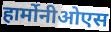
हार्मोनीओएस